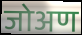
जोअण